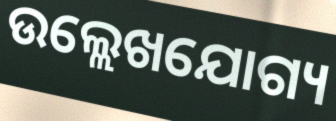
ଉଲ୍ଲେଖଯୋଗ୍ୟ